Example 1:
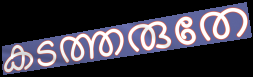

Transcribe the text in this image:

കടത്തരുതേ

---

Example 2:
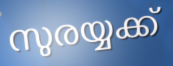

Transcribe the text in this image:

സുരയ്യക്ക്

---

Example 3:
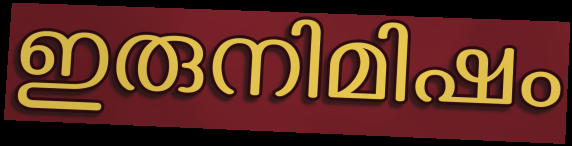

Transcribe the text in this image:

ഇരുനിമിഷം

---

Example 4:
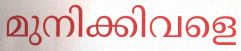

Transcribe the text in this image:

മുനിക്കിവളെ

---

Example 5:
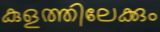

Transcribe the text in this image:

കുളത്തിലേക്കും